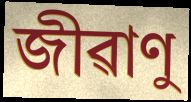
জীৱাণু